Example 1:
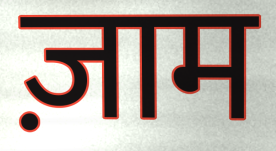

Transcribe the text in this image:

ज़ाम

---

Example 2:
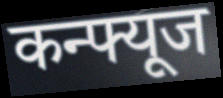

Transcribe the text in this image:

कन्फ्यूज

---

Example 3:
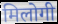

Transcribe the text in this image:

मिलोगी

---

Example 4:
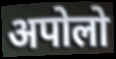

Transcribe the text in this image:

अपोलो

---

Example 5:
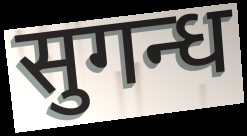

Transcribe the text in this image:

सुगन्ध